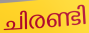
ചിരണ്ടി